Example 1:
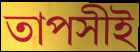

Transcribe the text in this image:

তাপসীই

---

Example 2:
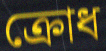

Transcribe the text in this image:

ক্রোধ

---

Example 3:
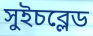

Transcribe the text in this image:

সুইচব্লেড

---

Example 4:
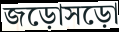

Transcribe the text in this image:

জড়োসড়ো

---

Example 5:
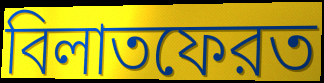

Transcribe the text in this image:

বিলাতফেরত